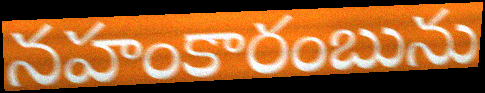
నహంకారంబును